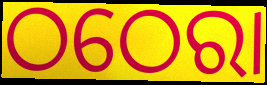
ଠଠେରା